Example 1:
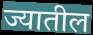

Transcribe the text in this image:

ज्यातील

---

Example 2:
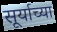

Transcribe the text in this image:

सूर्याच्या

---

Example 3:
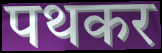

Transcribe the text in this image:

पथकर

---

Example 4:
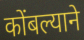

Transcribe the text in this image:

कोंबल्याने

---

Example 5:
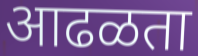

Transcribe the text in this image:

आढळता